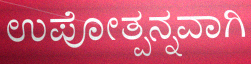
ಉಪೋತ್ಪನ್ನವಾಗಿ